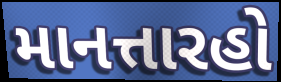
માનત્તારહો